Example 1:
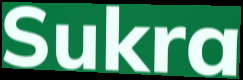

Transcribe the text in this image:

Sukra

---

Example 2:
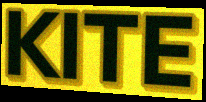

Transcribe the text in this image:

KITE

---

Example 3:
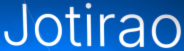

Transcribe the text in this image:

Jotirao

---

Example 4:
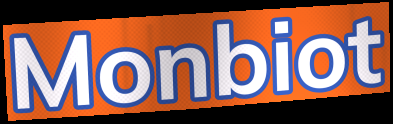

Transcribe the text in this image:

Monbiot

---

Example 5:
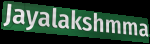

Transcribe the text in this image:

Jayalakshmma